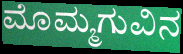
ಮೊಮ್ಮಗುವಿನ